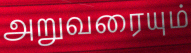
அறுவரையும்